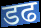
डढ